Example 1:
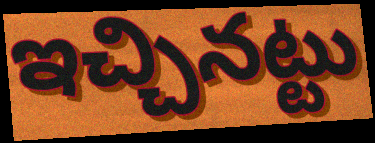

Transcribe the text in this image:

ఇచ్చినట్టు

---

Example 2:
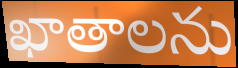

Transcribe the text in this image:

ఖాతాలను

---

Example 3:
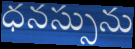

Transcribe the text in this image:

ధనస్సును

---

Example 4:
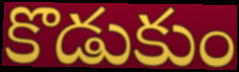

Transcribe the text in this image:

కొడుకుం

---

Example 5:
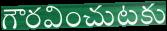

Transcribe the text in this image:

గౌరవించుటకు